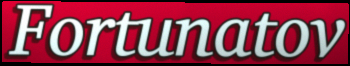
Fortunatov